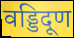
वड्डिदूण